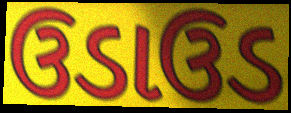
ઉડાઉડ